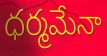
ధర్మమేనా